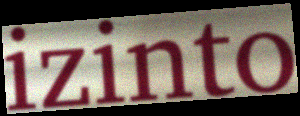
izinto